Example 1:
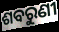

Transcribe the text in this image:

ଶବରୁଣୀ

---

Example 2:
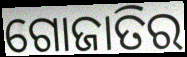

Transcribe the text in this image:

ଗୋଜାତିର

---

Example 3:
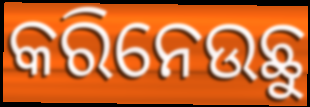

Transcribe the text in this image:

କରିନେଉଛୁ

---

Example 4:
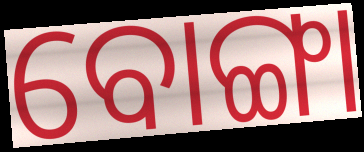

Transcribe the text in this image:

ବୋଙ୍ଗା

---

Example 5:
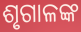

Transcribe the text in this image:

ଶୃଗାଳଙ୍କ